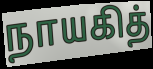
நாயகித்